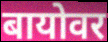
बायोवर